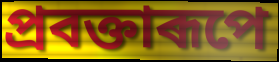
প্ৰবক্তাৰূপে